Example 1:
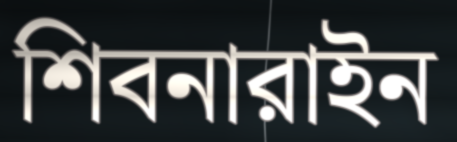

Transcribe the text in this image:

শিবনারাইন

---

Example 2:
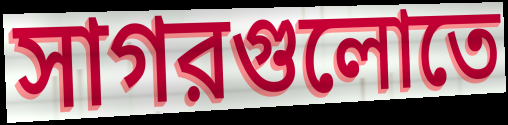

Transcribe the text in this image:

সাগরগুলোতে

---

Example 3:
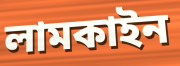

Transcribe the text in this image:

লামকাইন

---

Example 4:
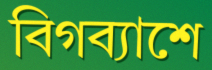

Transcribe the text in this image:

বিগব্যাশে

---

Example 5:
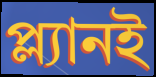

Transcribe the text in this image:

প্ল্যানই